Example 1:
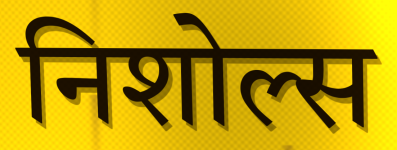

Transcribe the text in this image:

निशोल्स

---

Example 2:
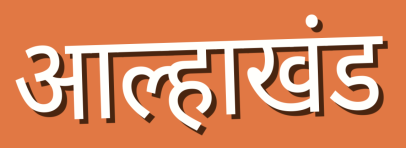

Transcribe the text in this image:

आल्हाखंड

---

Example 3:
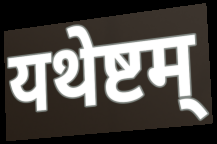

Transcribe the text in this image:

यथेष्टम्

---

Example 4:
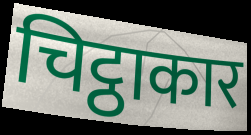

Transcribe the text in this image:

चिट्ठाकार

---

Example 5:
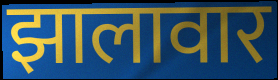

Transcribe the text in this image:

झालावार